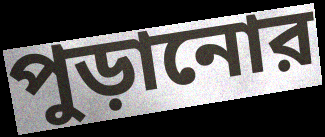
পুড়ানোর